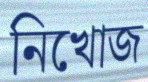
নিখোজ